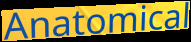
Anatomical